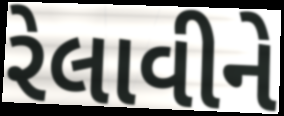
રેલાવીને